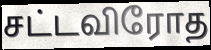
சட்டவிரோத